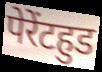
पेरेंटहुड